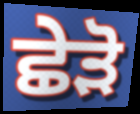
ਛੇੜੋ